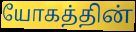
யோகத்தின்